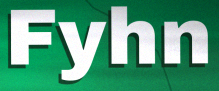
Fyhn